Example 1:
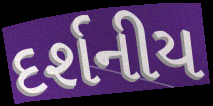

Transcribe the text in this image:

દર્શનીય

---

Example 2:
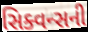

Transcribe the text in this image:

સિક્વન્સની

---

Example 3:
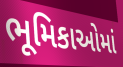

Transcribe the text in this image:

ભૂમિકાઓમાં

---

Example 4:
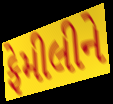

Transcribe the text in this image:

ફેમીલીને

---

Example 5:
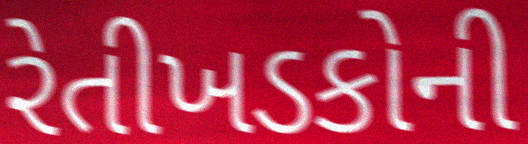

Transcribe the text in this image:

રેતીખડકોની